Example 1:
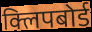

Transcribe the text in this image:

क्लिपबोर्ड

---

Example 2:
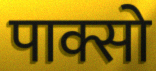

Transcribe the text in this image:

पाक्सो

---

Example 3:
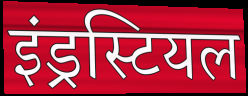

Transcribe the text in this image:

इंड्रस्टियल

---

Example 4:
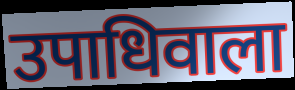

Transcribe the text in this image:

उपाधिवाला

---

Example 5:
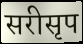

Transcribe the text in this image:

सरीसृप